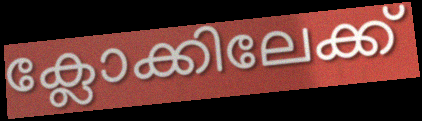
ക്ലോക്കിലേക്ക്